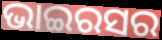
ଭାଇରସର